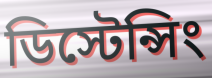
ডিস্টেন্সিং